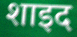
शाइद